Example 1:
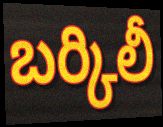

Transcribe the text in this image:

బర్కిలీ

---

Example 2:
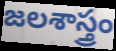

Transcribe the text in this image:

జలశాస్త్రం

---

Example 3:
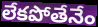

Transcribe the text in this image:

లేకపోతేనేం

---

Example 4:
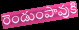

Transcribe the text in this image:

రెండుంపావుకి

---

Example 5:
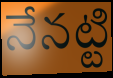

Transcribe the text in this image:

నేనట్టి